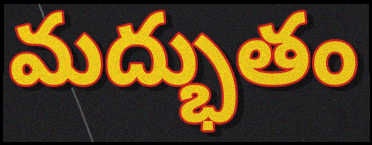
మద్భుతం